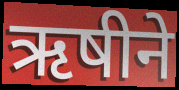
ऋषीने